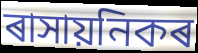
ৰাসায়নিকৰ